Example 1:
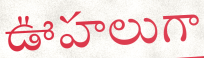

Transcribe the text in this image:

ఊహలుగా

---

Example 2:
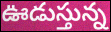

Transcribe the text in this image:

ఊడుస్తున్న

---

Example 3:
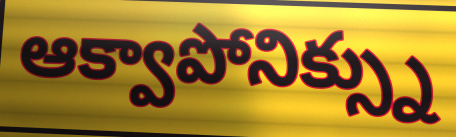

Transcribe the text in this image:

ఆక్వాపోనిక్స్ను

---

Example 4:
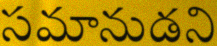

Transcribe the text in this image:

సమానుడని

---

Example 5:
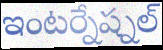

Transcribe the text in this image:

ఇంటర్నేష్నల్